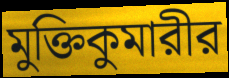
মুক্তিকুমারীর